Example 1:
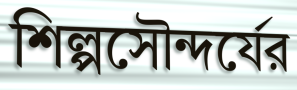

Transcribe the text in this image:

শিল্পসৌন্দর্যের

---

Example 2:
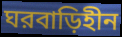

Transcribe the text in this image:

ঘরবাড়িহীন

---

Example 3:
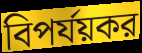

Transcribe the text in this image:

বিপর্যয়কর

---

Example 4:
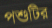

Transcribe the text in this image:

পশুটির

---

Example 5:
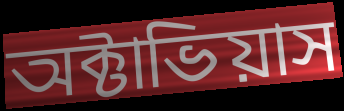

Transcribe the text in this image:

অক্টাভিয়াস